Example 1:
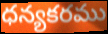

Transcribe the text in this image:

ధన్యకరము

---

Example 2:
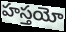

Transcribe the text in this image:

హస్తయో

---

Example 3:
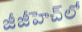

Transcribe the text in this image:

జీజీహెచ్‌లో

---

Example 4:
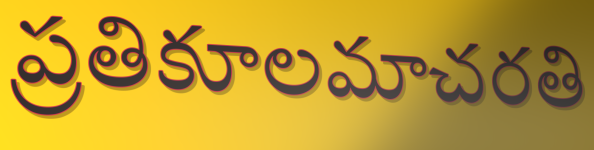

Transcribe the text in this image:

ప్రతికూలమాచరతి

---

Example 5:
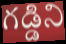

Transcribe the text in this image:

గడ్డిని